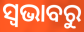
ସ୍ଵଭାବରୁ